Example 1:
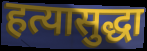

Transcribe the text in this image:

हत्यासुद्धा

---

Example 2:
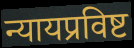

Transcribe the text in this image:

न्यायप्रविष्ट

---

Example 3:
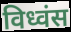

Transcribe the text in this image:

विध्वंस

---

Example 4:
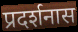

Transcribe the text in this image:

प्रदर्शनास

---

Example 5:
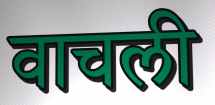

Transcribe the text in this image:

वाचली